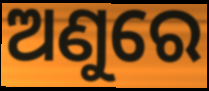
ଅଣୁରେ